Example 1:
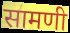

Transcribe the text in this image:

सामणी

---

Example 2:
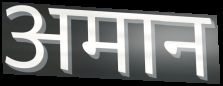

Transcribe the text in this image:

अमान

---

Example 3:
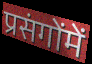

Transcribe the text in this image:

प्रसंगोंमें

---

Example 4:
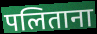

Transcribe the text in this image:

पलिताना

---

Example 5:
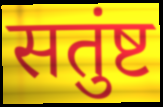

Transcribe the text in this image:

सतुंष्ट